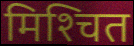
मिश्चित